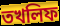
তখলিফ